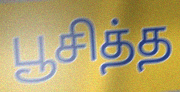
பூசித்த